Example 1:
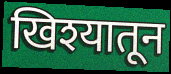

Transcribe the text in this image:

खिश्यातून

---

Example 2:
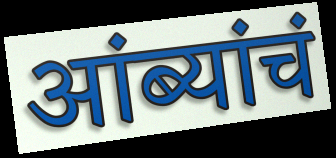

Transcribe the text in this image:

आंब्यांचं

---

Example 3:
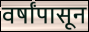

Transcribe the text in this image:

वर्षांपासून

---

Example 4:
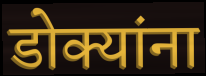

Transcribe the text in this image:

डोक्यांना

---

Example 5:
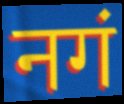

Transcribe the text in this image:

नगं